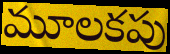
మూలకపు